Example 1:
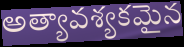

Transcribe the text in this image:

అత్యావశ్యకమైన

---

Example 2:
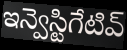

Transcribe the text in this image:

ఇన్వెస్టిగేటివ్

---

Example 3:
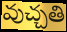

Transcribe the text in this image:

వుచ్చతి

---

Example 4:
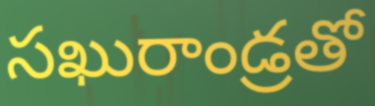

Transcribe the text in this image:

సఖురాండ్రతో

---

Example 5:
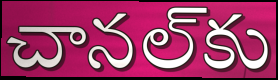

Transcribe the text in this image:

చానల్‌కు